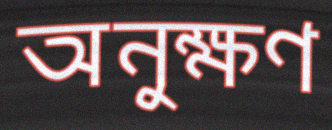
অনুক্ষণ